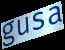
gusa